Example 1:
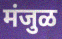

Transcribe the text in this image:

मंजुळ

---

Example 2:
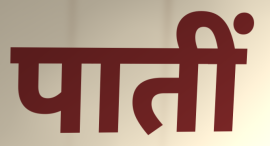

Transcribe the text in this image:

पातीं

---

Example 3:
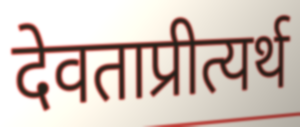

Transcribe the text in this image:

देवताप्रीत्यर्थ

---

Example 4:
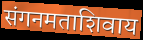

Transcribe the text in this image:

संगनमताशिवाय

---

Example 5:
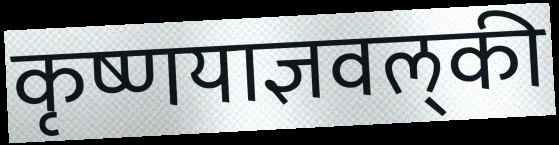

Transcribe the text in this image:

कृष्णयाज्ञवल्की